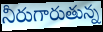
నీరుగారుతున్న